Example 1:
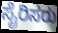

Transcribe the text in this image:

ಸೈರಿಸರು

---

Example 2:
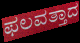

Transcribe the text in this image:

ಫಲವತ್ತಾದ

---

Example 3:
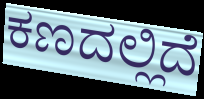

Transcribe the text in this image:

ಕಣದಲ್ಲಿದೆ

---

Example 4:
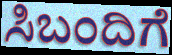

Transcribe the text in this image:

ಸಿಬಂದಿಗೆ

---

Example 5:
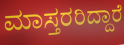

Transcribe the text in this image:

ಮಾಸ್ತರರಿದ್ದಾರೆ